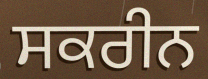
ਸਕਰੀਨ